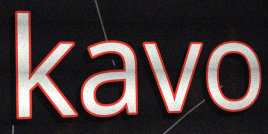
kavo